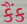
કૈંક